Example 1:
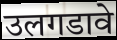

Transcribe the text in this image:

उलगडावे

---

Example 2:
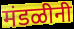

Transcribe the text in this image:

मंडळीनी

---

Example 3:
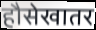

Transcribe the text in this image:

हौसेखातर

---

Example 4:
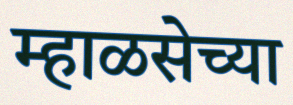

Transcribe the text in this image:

म्हाळसेच्या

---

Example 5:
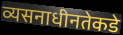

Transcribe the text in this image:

व्यसनाधीनतेकडे